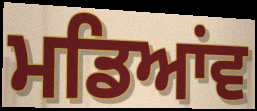
ਮਡਿਆਂਵ